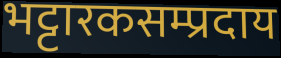
भट्टारकसम्प्रदाय